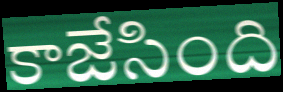
కాజేసింది